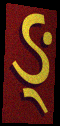
ઙ્